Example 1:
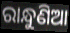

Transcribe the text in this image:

ରାନ୍ଧୁଣିଆ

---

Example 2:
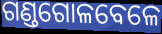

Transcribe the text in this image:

ଗଣ୍ଡଗୋଳବେଳେ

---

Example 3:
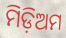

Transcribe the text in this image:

ମିଡ଼ିଅମ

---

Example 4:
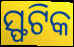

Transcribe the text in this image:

ସ୍ଫଟିକ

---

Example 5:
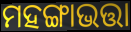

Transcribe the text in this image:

ମହଙ୍ଗାଭତ୍ତା